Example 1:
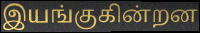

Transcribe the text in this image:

இயங்குகின்றன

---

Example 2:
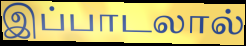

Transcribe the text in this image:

இப்பாடலால்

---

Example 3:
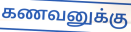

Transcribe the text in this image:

கணவனுக்கு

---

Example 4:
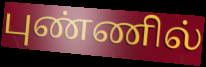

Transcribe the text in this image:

புண்ணில்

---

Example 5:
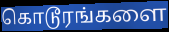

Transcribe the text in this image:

கொடூரங்களை